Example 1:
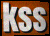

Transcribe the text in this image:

kss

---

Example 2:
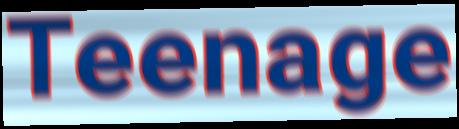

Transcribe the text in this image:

Teenage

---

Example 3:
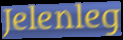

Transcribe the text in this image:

Jelenleg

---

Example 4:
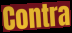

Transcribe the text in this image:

Contra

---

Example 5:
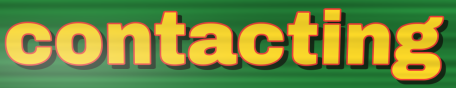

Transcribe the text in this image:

contacting